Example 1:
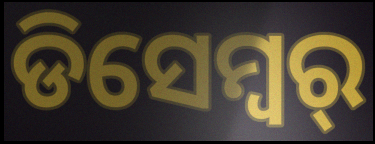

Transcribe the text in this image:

ଡିସେମ୍ବର୍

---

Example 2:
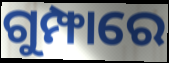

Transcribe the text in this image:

ଗୁମ୍ଫାରେ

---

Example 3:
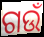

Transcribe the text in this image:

ଗଉଁ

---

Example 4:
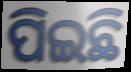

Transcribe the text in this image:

ପିଇଛି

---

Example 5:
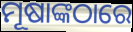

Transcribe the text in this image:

ମୂଷାଙ୍କଠାରେ